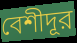
বেশীদূর